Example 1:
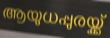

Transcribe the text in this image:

ആയുധപ്പുരയ്ക്ക്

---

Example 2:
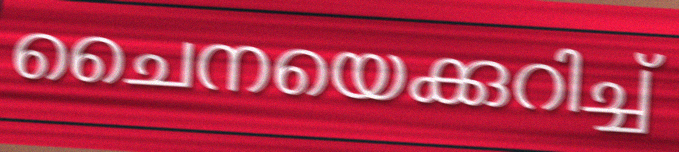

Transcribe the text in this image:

ചൈനയെക്കുറിച്ച്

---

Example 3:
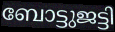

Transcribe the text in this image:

ബോട്ടുജട്ടി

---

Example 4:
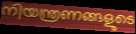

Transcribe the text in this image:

നിയന്ത്രണങ്ങളുടെ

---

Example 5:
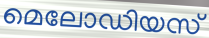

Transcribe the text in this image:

മെലോഡിയസ്